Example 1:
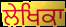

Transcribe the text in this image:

ਲੇਖਿਕਾ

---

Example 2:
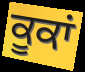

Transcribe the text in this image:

ਕੂਕਾਂ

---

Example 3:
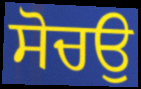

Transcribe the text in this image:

ਸੋਚਉ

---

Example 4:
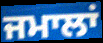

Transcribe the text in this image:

ਜਮਾਲਾਂ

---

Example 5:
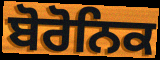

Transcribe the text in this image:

ਬੋਰੋਨਿਕ